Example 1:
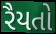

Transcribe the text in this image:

રૈયતો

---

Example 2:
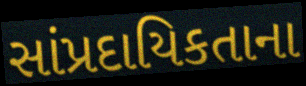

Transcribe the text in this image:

સાંપ્રદાયિકતાના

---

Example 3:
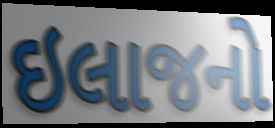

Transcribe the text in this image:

ઇલાજનો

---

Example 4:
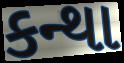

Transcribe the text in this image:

કન્થા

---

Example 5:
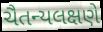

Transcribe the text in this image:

ચૈતન્યલક્ષણે